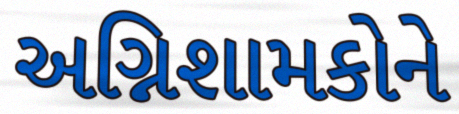
અગ્નિશામકોને